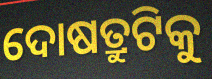
ଦୋଷତ୍ରୁଟିକୁ